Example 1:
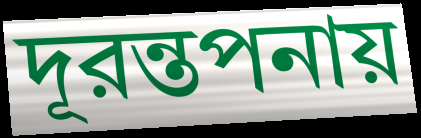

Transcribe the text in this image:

দূরন্তপনায়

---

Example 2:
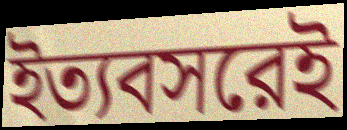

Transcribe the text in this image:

ইত্যবসরেই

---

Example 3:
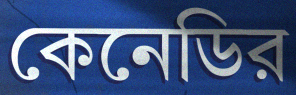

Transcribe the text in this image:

কেনেডির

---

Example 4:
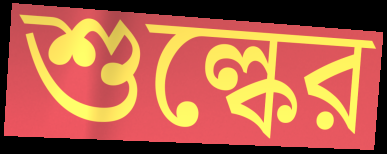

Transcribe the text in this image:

শুল্কের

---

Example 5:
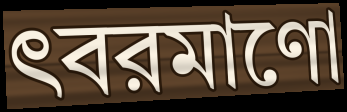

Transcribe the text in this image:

ৎবরমাণো